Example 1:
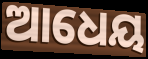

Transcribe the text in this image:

ଆଧେୟ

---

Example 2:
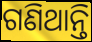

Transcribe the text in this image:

ଗଣିଥାନ୍ତି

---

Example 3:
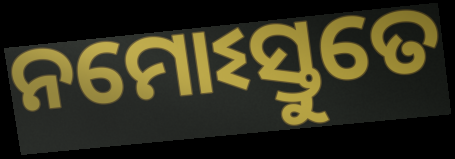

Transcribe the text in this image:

ନମୋଽସ୍ତୁତେ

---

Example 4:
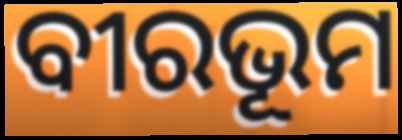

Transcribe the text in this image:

ବୀରଭୂମ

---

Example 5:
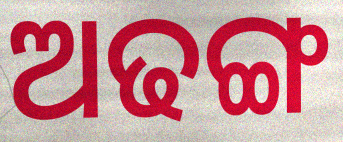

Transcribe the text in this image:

ଅଢଙ୍ଗ